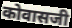
कोवासजी